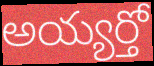
అయ్యర్తో